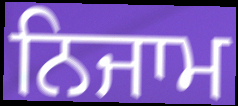
ਨਿਜਾਮ